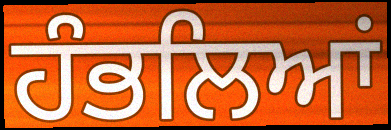
ਹੰਭਲਿਆਂ